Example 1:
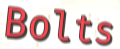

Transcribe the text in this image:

Bolts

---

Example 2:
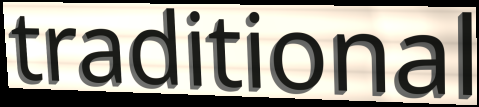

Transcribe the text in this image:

traditional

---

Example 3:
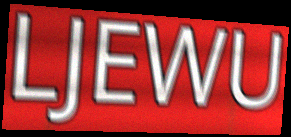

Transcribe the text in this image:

LJEWU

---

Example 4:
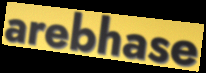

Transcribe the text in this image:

arebhase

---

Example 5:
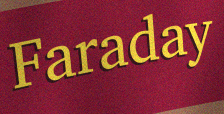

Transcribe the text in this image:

Faraday